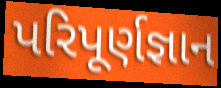
પરિપૂર્ણજ્ઞાન